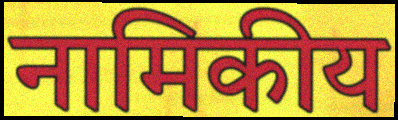
नामिकीय